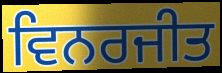
ਵਿਨਰਜੀਤ